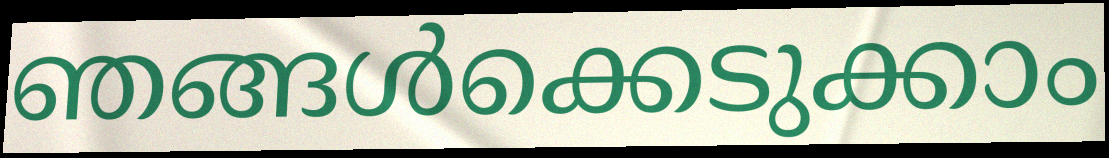
ഞങ്ങൾക്കെടുക്കാം